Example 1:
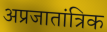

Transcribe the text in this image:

अप्रजातांत्रिक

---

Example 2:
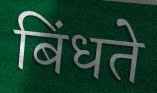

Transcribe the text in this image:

बिंधते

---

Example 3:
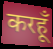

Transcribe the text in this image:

करहूँ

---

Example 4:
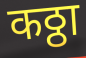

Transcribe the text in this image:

कठ्ठा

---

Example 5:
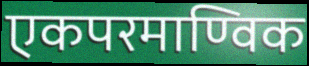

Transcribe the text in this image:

एकपरमाण्विक